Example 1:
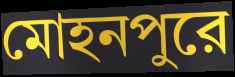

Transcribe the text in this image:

মোহনপুরে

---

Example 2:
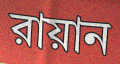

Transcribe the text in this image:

রায়ান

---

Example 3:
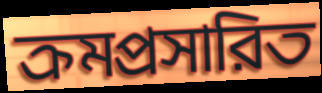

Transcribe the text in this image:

ক্রমপ্রসারিত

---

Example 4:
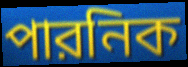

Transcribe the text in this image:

পারনিক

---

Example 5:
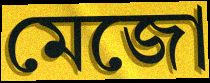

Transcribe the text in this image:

মেজো